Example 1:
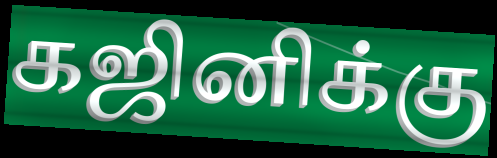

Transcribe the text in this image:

கஜினிக்கு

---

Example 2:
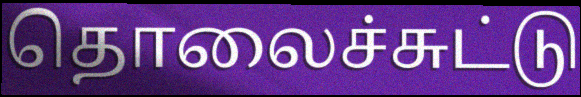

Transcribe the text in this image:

தொலைச்சுட்டு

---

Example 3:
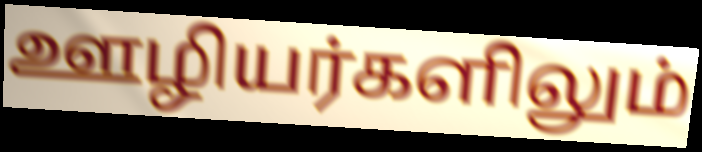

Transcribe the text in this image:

ஊழியர்களிலும்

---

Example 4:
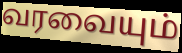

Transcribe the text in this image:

வரவையும்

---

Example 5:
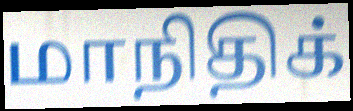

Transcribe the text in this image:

மாநிதிக்